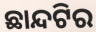
ଛାନ୍ଦଟିର